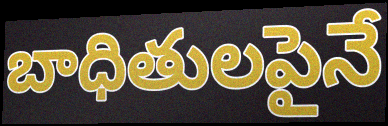
బాధితులపైనే